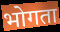
भोगता